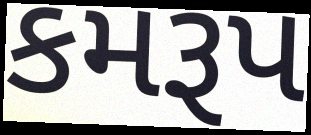
કમરૂપ